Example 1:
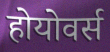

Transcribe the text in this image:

होयोवर्स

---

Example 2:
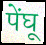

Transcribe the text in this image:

पेंघू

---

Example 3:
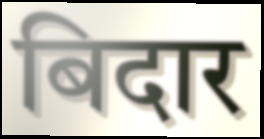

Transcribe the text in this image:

बिदार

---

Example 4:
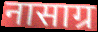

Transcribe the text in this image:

नासाग्र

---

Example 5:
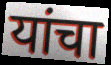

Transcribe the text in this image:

यांचा